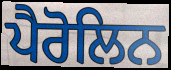
ਪੈਰੋਲਿਨ